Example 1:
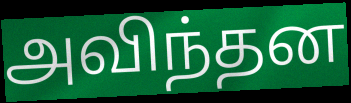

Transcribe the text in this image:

அவிந்தன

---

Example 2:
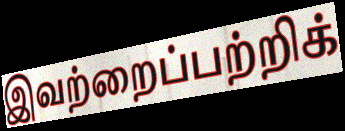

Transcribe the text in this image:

இவற்றைப்பற்றிக்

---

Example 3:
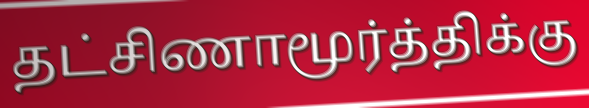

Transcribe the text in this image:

தட்சிணாமூர்த்திக்கு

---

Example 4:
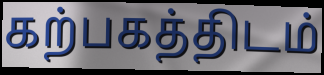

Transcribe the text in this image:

கற்பகத்திடம்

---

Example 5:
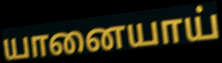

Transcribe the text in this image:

யானையாய்